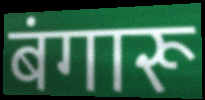
बंगारू